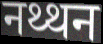
नथ्थन